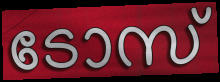
ടോസ്